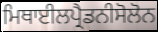
ਮਿਥਾਈਲਪ੍ਰੈਡਨੀਸੋਲੋਨ